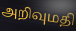
அறிவுமதி